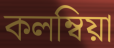
কলম্বিয়া